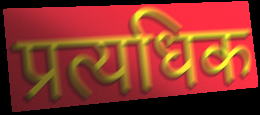
प्रत्यधिक